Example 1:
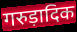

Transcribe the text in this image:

गरुड़ादिक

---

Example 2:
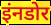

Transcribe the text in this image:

इंनडोर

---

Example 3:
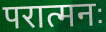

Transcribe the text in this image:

परात्मनः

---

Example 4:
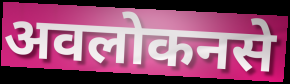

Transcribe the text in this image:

अवलोकनसे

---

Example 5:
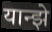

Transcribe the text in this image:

यान्झे